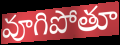
వూగిపోతూ